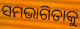
ସମଭାଗିତାକୁ